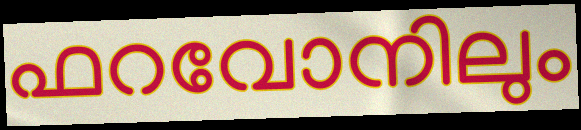
ഫറവോനിലും